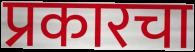
प्रकारचा